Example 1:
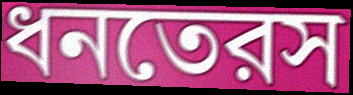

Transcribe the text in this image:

ধনতেরস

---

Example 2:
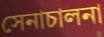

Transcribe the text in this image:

সেনাচালনা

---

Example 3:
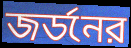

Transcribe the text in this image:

জর্ডনের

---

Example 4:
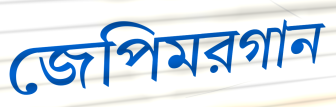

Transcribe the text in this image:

জেপিমরগান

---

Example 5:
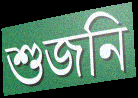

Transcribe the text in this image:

শুজনি